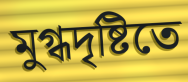
মুগ্ধদৃষ্টিতে